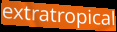
extratropical